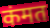
कंमत